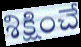
శిక్షించే